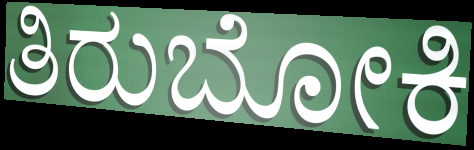
ತಿರುಬೋಕಿ